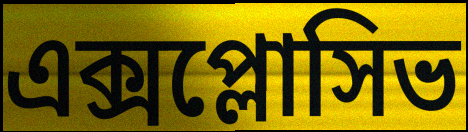
এক্সপ্লোসিভ